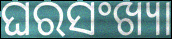
ଘରସଂଖ୍ୟା